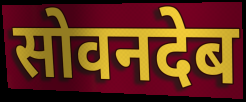
सोवनदेब